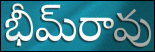
భీమ్‌రావు